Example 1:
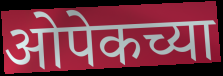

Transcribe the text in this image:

ओपेकच्या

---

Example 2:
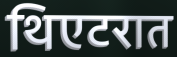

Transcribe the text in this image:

थिएटरात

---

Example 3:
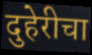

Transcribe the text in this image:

दुहेरीचा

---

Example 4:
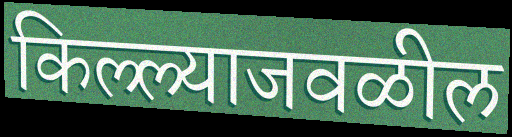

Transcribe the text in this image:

किल्ल्याजवळील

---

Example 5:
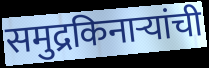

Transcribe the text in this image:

समुद्रकिनाऱ्यांची